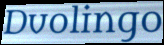
Duolingo